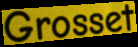
Grosset